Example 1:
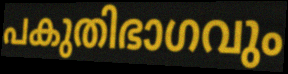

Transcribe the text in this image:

പകുതിഭാഗവും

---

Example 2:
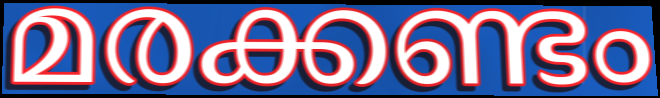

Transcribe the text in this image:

മരക്കണ്ടം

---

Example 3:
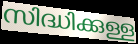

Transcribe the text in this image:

സിദ്ധിക്കുള്ള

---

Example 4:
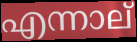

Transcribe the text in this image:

എന്നാല്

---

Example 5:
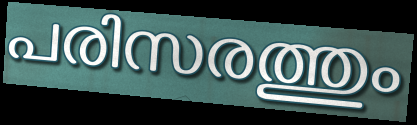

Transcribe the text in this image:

പരിസരത്തും